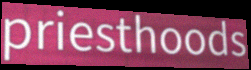
priesthoods